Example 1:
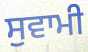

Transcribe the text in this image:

ਸੁਵਾਮੀ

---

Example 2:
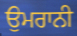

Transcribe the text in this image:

ਉਮਰਾਨੀ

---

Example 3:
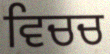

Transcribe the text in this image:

ਵਿਚਚ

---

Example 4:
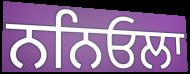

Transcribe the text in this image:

ਨਨਿਓਲਾ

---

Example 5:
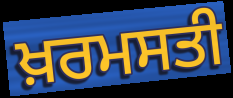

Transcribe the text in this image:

ਖ਼ਰਮਸਤੀ